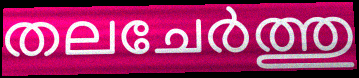
തലചേർത്തു